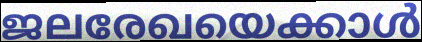
ജലരേഖയെക്കാൾ